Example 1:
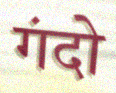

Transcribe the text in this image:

गंदो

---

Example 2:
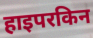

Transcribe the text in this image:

हाइपरकिन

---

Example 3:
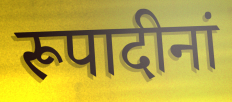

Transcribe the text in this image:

रूपादीनां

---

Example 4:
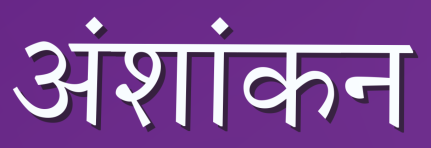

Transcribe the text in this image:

अंशांकन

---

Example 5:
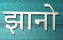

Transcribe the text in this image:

झानो